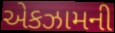
એકઝામની